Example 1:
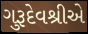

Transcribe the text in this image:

ગુરૂદેવશ્રીએ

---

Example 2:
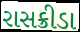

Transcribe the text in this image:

રાસક્રીડા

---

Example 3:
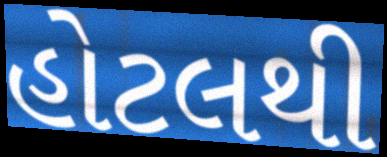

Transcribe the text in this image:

હોટલથી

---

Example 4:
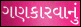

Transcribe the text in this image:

ગણકારવાનું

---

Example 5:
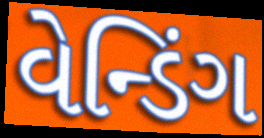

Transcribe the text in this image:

વેન્ડિંગ